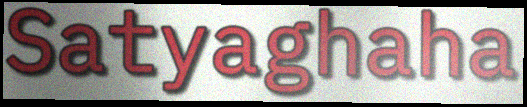
Satyaghaha